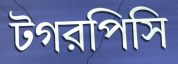
টগরপিসি